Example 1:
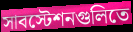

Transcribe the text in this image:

সাবস্টেশনগুলিতে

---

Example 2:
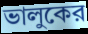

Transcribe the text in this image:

ভালুকের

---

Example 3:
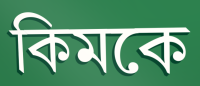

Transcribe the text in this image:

কিমকে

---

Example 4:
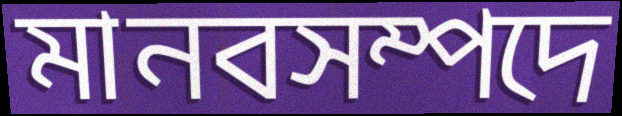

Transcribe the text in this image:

মানবসম্পদে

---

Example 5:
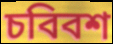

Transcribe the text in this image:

চবিবশ